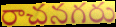
రాచనగరు